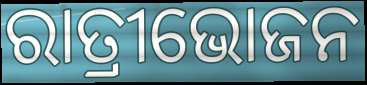
ରାତ୍ରୀଭୋଜନ